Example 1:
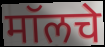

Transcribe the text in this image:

मॉलचे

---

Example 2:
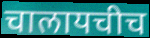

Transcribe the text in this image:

चालायचीच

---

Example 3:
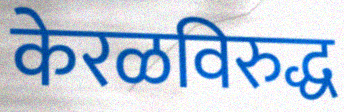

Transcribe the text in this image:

केरळविरुद्ध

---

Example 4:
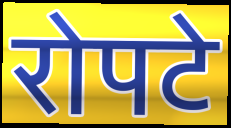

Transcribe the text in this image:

रोपटे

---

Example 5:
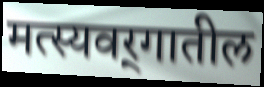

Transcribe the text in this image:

मत्स्यवर्गातील